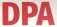
DPA